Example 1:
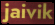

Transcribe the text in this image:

jaivik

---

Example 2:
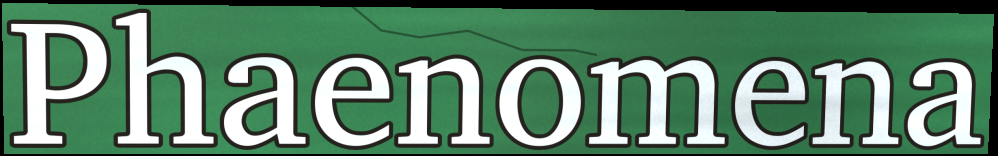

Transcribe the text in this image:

Phaenomena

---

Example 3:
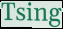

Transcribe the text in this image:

Tsing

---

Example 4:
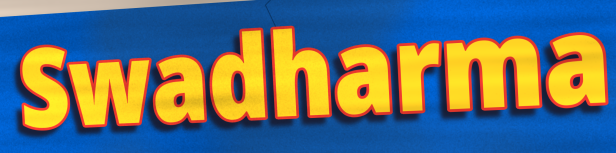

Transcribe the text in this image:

Swadharma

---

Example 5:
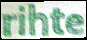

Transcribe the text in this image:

rihte